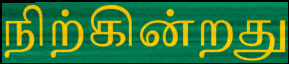
நிற்கின்றது